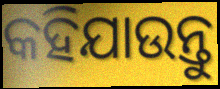
କହିଯାଉନ୍ତୁ